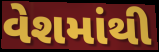
વેશમાંથી